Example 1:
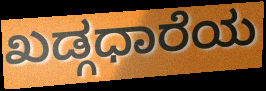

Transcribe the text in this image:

ಖಡ್ಗಧಾರೆಯ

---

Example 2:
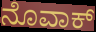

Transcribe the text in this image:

ನೊವಾಕ್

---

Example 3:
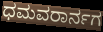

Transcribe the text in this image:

ಧಮವರಾರ್ನಗ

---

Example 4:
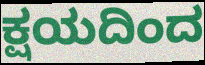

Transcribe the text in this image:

ಕ್ಷಯದಿಂದ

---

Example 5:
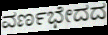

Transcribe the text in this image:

ವರ್ಣಭೇದದ